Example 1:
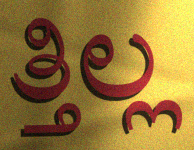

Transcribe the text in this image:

ತ್ತಿಲ್ಲ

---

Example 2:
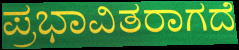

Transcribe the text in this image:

ಪ್ರಭಾವಿತರಾಗದೆ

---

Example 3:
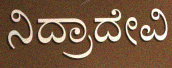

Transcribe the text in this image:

ನಿದ್ರಾದೇವಿ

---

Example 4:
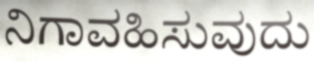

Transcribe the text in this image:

ನಿಗಾವಹಿಸುವುದು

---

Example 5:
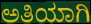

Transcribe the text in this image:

ಅತಿಯಾಗಿ